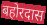
बहोरदास